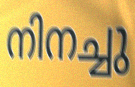
നിനച്ചു